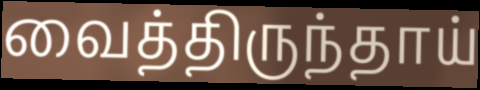
வைத்திருந்தாய்